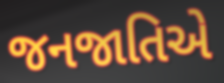
જનજાતિએ